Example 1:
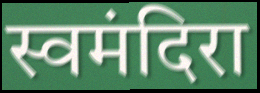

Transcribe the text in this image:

स्वमंदिरा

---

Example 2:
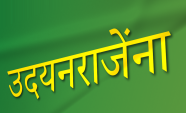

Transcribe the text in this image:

उदयनराजेंना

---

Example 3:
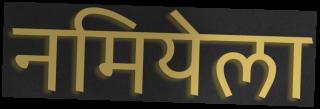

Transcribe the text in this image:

नमियेला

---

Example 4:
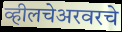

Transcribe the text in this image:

व्हीलचेअरवरचे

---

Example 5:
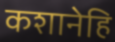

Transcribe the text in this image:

कशानेहि